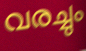
വരച്ചും